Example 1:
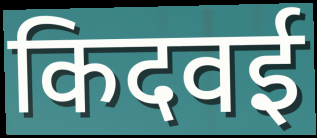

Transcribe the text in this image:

किदवई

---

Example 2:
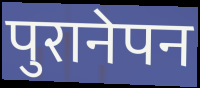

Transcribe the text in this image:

पुरानेपन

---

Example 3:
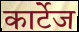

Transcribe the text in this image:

कार्टेज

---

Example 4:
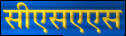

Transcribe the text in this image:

सीएसएएस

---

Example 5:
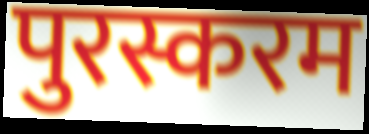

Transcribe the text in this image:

पुरस्करम